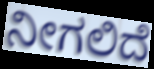
ನೀಗಲಿದೆ